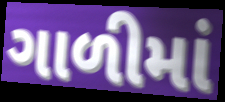
ગાળીમાં